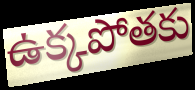
ఉక్కపోతకు